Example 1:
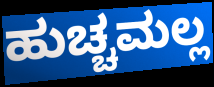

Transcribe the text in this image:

ಹುಚ್ಚಮಲ್ಲ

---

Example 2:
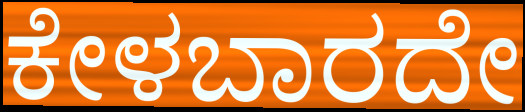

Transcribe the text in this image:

ಕೇಳಬಾರದೇ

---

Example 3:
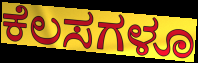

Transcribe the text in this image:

ಕೆಲಸಗಳೂ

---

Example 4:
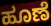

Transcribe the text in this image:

ಹೂಣೆ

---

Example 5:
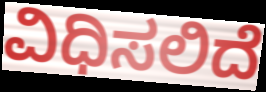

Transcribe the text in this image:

ವಿಧಿಸಲಿದೆ